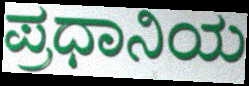
ಪ್ರಧಾನಿಯ